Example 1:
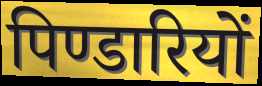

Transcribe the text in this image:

पिण्डारियों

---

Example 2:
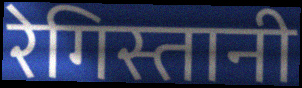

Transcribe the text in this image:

रेगिस्तानी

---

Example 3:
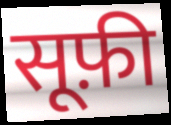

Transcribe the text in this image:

सूफ़ी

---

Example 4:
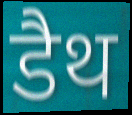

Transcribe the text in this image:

डैथ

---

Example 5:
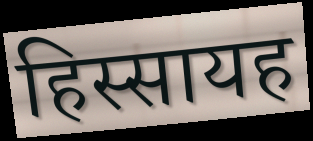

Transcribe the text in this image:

हिस्सायह